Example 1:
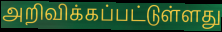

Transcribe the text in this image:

அறிவிக்கப்பட்டுள்ளது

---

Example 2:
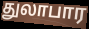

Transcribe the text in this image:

துலாபார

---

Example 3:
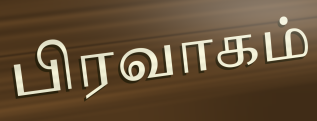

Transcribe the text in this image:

பிரவாகம்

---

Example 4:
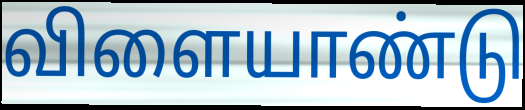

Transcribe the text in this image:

விளையாண்டு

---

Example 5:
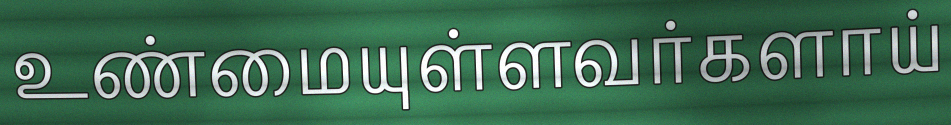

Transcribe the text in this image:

உண்மையுள்ளவர்களாய்